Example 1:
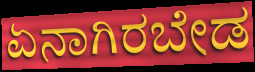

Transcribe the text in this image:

ಏನಾಗಿರಬೇಡ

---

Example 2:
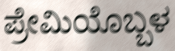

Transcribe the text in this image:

ಪ್ರೇಮಿಯೊಬ್ಬಳ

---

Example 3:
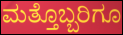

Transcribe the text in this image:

ಮತ್ತೊಬ್ಬರಿಗೂ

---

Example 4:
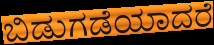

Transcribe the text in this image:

ಬಿಡುಗಡೆಯಾದರೆ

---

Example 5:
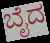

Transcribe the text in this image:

ಬೈದ